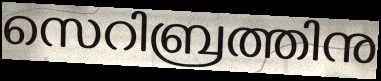
സെറിബ്രത്തിനു